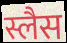
स्लैस